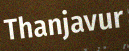
Thanjavur